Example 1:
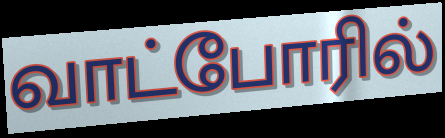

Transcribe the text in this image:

வாட்போரில்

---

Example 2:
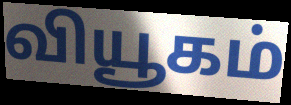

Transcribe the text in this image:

வியூகம்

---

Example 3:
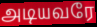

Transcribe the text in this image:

அடியவரே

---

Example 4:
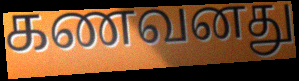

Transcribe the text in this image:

கணவனது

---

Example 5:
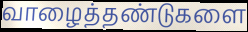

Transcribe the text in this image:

வாழைத்தண்டுகளை